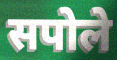
सपोले